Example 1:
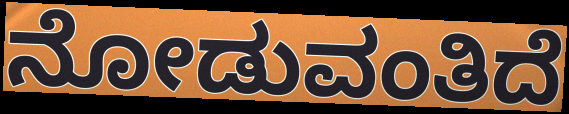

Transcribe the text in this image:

ನೋಡುವಂತಿದೆ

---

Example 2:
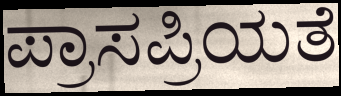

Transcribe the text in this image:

ಪ್ರಾಸಪ್ರಿಯತೆ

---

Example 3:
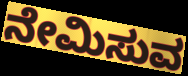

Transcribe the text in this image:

ನೇಮಿಸುವ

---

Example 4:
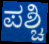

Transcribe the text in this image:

ಪಶ್ಚಿ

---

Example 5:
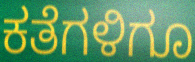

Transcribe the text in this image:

ಕತೆಗಳಿಗೂ